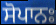
ਸੋਪਾਨਃ